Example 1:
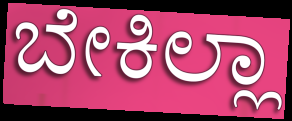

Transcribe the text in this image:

ಬೇಕಿಲ್ಲಾ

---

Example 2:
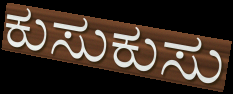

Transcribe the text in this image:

ಕುಸುಕುಸು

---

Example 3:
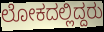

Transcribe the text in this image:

ಲೋಕದಲ್ಲಿದ್ದರು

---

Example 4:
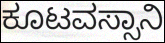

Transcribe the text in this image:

ಕೂಟವಸ್ಸಾನಿ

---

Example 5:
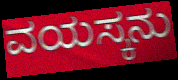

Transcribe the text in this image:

ವಯಸ್ಕನು